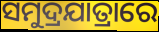
ସମୁଦ୍ରଯାତ୍ରାରେ